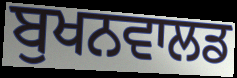
ਬੁਖਨਵਾਲਡ